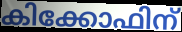
കിക്കോഫിന്